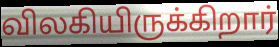
விலகியிருக்கிறார்